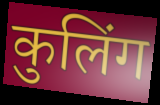
कुलिंग